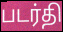
படர்தி